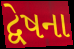
દ્વેષના